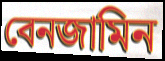
বেনজামিন